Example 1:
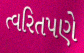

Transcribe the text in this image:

ત્વરિતપણે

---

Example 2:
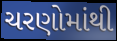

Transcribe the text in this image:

ચરણોમાંથી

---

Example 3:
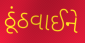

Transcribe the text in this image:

ઠૂંઠવાઈને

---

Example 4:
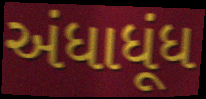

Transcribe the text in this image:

અંધાધૂંધ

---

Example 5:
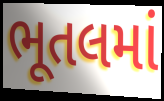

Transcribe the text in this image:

ભૂતલમાં